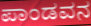
ಪಾಂಡವನ